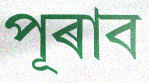
পূৰাব